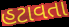
હટાવતા